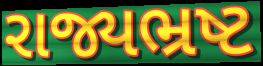
રાજ્યભ્રષ્ટ